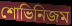
শোভিনিজম